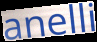
anelli